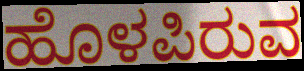
ಹೊಳಪಿರುವ